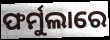
ଫର୍ମୁଲାରେ